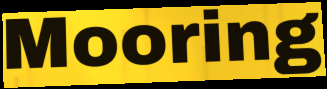
Mooring